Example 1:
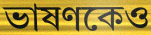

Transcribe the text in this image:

ভাষণকেও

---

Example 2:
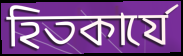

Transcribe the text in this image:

হিতকার্যে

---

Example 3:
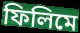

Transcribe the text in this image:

ফিলিমে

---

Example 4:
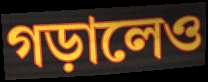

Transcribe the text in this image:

গড়ালেও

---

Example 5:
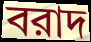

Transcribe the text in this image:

বরাদ